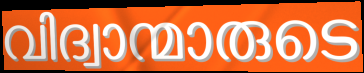
വിദ്വാന്മാരുടെ